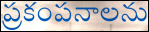
ప్రకంపనాలను